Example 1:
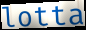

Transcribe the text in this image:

lotta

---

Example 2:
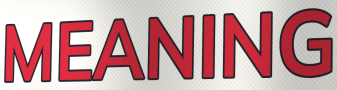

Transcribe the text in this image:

MEANING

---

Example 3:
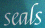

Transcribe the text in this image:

seals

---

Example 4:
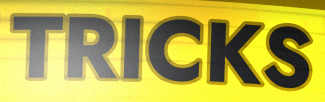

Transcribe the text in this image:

TRICKS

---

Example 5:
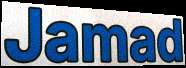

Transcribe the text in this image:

Jamad